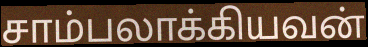
சாம்பலாக்கியவன்